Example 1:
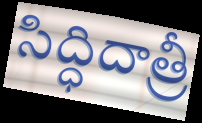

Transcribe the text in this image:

సిద్ధిదాత్రీ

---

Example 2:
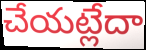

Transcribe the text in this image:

చేయట్లేదా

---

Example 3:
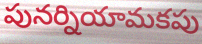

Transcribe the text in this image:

పునర్నియామకపు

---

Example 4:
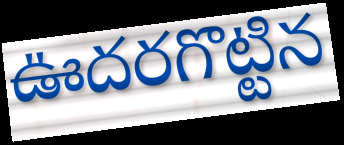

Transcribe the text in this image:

ఊదరగొట్టిన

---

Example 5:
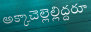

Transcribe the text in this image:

అక్కాచెల్లెల్లిద్దరూ